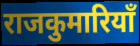
राजकुमारियाँ